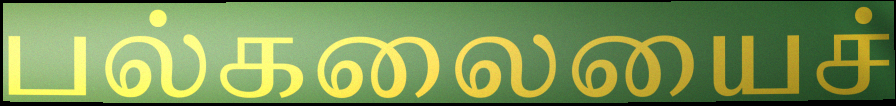
பல்கலையைச்